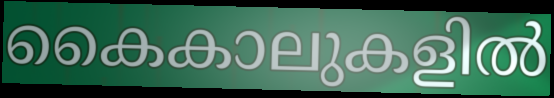
കൈകാലുകളിൽ